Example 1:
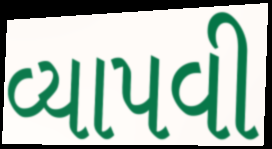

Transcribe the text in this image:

વ્યાપવી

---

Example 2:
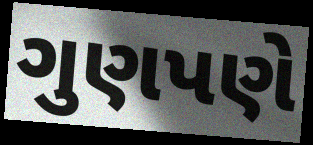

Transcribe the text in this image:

ગુણપણે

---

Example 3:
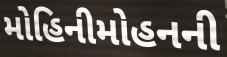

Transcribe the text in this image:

મોહિનીમોહનની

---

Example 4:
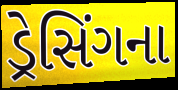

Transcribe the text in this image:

ડ્રેસિંગના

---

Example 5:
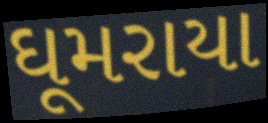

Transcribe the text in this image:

ઘૂમરાયા